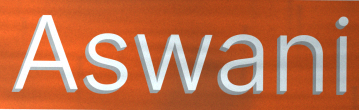
Aswani